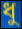
ধু